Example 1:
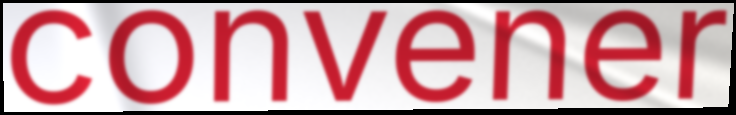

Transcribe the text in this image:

convener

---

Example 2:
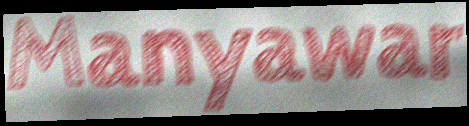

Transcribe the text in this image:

Manyawar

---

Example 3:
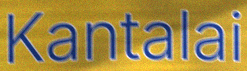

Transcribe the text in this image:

Kantalai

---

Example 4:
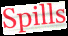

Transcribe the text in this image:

Spills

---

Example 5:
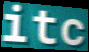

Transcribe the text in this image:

itc